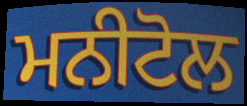
ਮਨੀਟੋਲ